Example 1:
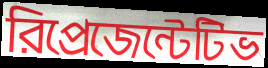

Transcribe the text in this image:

রিপ্রেজেন্টেটিভ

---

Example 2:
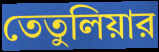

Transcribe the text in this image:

তেতুলিয়ার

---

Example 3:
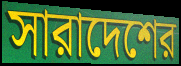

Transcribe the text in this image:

সারাদেশের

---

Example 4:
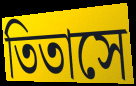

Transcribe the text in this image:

তিতাসে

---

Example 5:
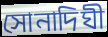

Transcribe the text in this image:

সোনাদিঘী